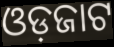
ଓଡ଼ଜାଟ